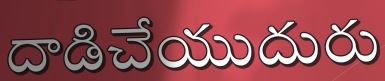
దాడిచేయుదురు